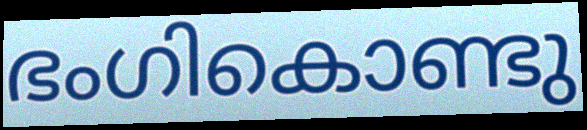
ഭംഗികൊണ്ടു